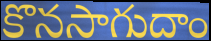
కొనసాగుదాం